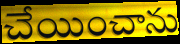
చేయించాను